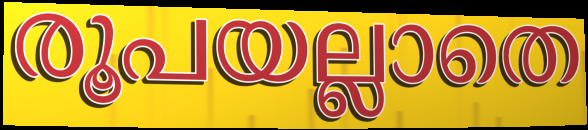
രൂപയല്ലാതെ